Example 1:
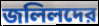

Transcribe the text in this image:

জলিলদের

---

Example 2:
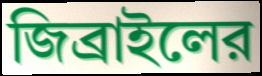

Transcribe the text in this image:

জিব্রাইলের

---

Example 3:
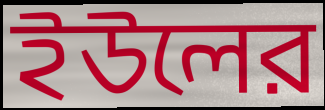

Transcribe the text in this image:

ইউলের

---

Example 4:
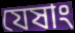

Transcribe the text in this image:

যেষাং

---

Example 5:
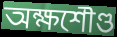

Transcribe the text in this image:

অক্ষশৌণ্ড